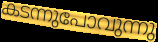
കടന്നുപോവുന്നു